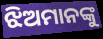
ଝିଅମାନଙ୍କୁ